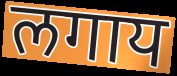
लगाय